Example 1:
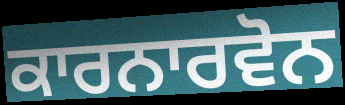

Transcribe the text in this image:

ਕਾਰਨਾਰਵੋਨ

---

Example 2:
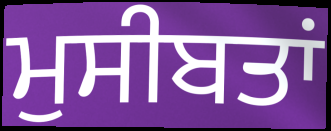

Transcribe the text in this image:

ਮੁਸੀਬਤਾਂ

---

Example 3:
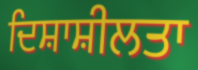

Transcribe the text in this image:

ਦਿਸ਼ਾਸ਼ੀਲਤਾ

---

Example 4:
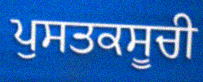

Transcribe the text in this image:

ਪੁਸਤਕਸੂਚੀ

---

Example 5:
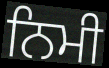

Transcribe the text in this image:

ਨਿਮੀ